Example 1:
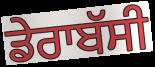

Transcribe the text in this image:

ਡੇਰਾਬੱਸੀ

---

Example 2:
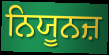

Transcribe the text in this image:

ਨਿਯੂਨਜ਼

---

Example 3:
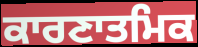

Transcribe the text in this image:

ਕਾਰਣਾਤਮਿਕ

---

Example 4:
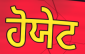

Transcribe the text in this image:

ਹੋਯੇਟ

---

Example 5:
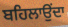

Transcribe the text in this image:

ਬਹਿਲਾਉਂਦਾ